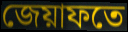
জেয়াফতে